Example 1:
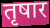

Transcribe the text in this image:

तृषार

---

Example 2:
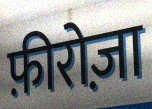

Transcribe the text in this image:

फ़ीरोज़ा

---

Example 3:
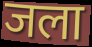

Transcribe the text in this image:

जला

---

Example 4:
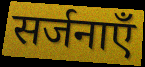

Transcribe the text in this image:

सर्जनाएँ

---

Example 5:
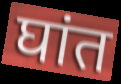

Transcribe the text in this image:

घांत